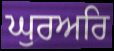
ਘੁਰਅਰਿ